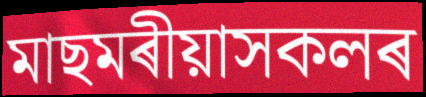
মাছমৰীয়াসকলৰ